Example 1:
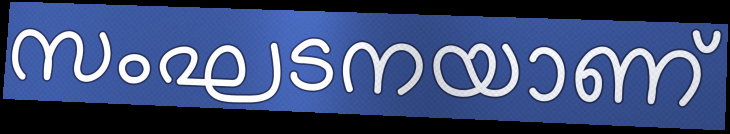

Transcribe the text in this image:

സംഘടനയാണ്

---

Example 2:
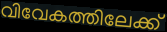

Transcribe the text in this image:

വിവേകത്തിലേക്ക്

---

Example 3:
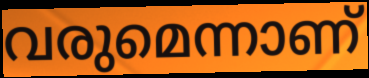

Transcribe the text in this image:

വരുമെന്നാണ്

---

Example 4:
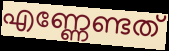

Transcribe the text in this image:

എണ്ണേണ്ടത്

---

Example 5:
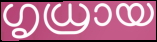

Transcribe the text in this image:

ഗൃധ്രായ